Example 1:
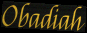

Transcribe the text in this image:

Obadiah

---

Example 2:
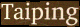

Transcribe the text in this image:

Taiping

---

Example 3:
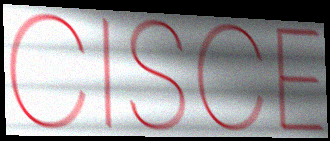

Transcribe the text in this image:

CISCE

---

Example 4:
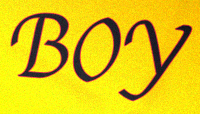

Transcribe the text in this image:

BOY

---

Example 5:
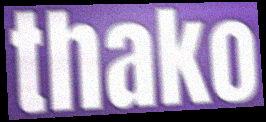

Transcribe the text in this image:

thako